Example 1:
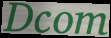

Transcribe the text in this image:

Dcom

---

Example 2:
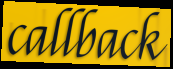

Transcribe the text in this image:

callback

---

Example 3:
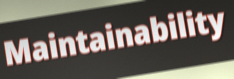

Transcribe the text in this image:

Maintainability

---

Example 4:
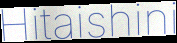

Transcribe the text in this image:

Hitaishini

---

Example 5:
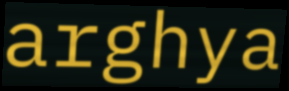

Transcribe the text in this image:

arghya